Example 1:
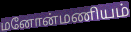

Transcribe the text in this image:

மனோன்மணியம்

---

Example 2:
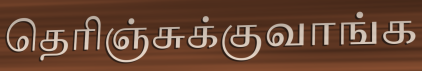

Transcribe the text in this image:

தெரிஞ்சுக்குவாங்க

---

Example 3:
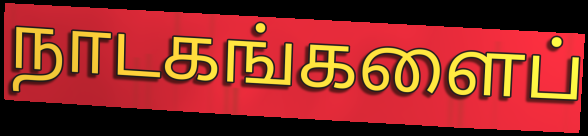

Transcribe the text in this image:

நாடகங்களைப்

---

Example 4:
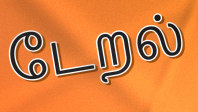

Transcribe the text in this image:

டேறல்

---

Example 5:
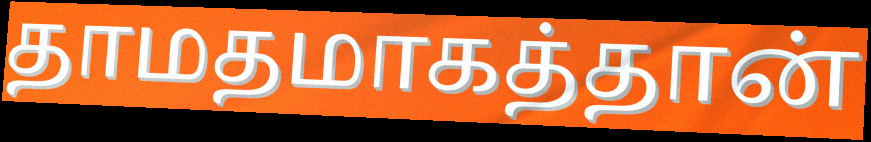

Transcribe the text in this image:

தாமதமாகத்தான்